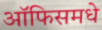
ऑफिसमधे